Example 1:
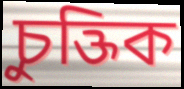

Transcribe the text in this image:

চুক্তিক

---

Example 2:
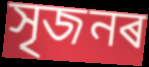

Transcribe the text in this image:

সৃজনৰ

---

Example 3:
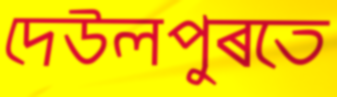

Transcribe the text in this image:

দেউলপুৰতে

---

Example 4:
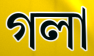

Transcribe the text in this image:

গলা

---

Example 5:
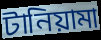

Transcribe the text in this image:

টানিয়ামা